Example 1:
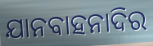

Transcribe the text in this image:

ଯାନବାହନାଦିର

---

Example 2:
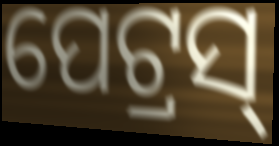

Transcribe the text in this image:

ପେଟ୍ରସ୍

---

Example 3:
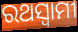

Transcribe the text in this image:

ରଥସ୍ୱାମୀ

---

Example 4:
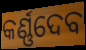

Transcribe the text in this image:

କର୍ଣ୍ଣଦେବ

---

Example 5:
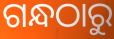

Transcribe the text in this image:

ଗନ୍ଧଠାରୁ